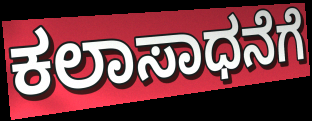
ಕಲಾಸಾಧನೆಗೆ